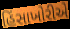
હિંસાખોરીએ